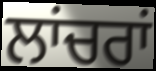
ਲਾਂਚਰਾਂ